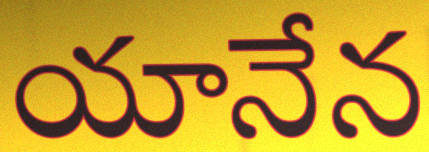
యానేన